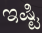
ಇಷ್ಟಿ